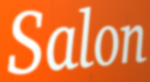
Salon